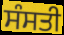
ਸੰਸਤੀ